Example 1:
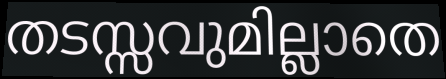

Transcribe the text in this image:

തടസ്സവുമില്ലാതെ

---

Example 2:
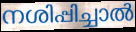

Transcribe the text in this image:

നശിപ്പിച്ചാൽ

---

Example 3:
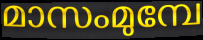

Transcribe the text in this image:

മാസംമുമ്പേ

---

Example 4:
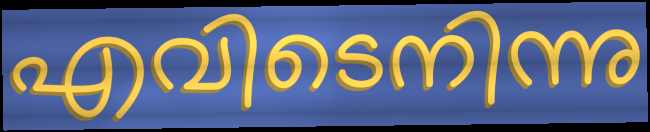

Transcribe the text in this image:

എവിടെനിന്നു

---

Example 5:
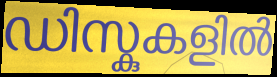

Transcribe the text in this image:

ഡിസ്കുകളിൽ